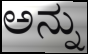
ಅನ್ನು